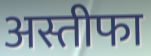
अस्तीफा